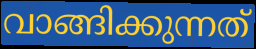
വാങ്ങിക്കുന്നത്